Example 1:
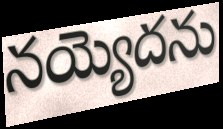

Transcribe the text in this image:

నయ్యెదను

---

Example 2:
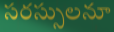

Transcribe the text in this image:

సరస్సులనూ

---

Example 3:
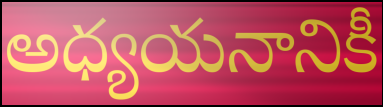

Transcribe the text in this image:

అధ్యయనానికీ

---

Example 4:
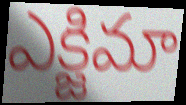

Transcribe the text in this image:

ఎక్జిమా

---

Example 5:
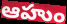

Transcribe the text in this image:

ఆహుం